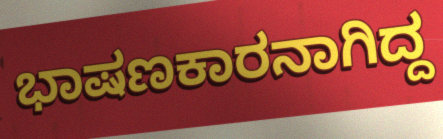
ಭಾಷಣಕಾರನಾಗಿದ್ದ